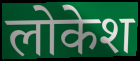
लोकेश